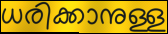
ധരിക്കാനുള്ള